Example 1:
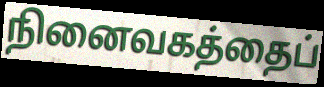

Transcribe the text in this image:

நினைவகத்தைப்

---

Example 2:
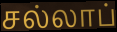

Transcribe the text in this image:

சல்லாப்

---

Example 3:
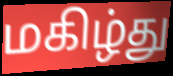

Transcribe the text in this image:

மகிழ்து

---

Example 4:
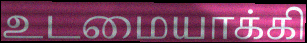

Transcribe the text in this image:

உடமையாக்கி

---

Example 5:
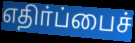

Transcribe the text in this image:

எதிர்ப்பைச்